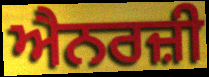
ਐਨਰਜ਼ੀ